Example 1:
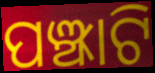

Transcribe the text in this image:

ପଞ୍ଝାଟି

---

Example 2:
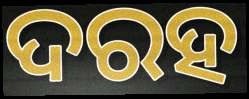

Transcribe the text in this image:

ଦରହ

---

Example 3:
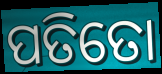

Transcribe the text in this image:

ପତିତୋ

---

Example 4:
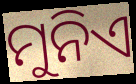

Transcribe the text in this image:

ମୁନିଏ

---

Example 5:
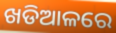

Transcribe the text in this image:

ଖଡିଆଳରେ